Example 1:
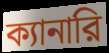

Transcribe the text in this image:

ক্যানারি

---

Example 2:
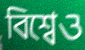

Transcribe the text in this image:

বিশ্বেও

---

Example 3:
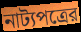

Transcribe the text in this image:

নাট্যপত্রের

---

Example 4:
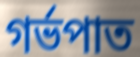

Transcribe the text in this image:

গর্ভপাত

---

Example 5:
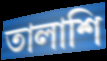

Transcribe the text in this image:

তালাশি